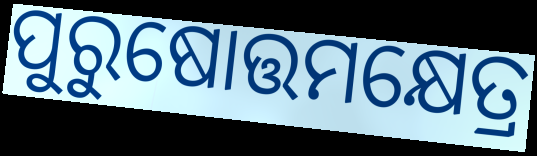
ପୁରୁଷୋତ୍ତମକ୍ଷେତ୍ର